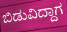
ಬಿಡುವಿದ್ದಾಗ